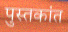
पुस्तकांत